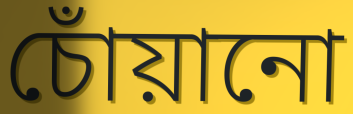
চোঁয়ানো